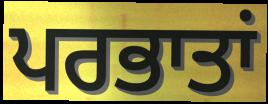
ਪਰਭਾਤਾਂ